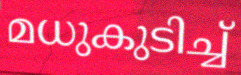
മധുകുടിച്ച്